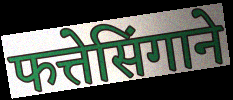
फत्तेसिंगाने